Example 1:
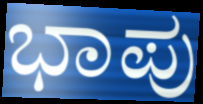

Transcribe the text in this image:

ಭಾಪು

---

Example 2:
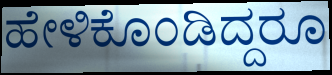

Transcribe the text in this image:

ಹೇಳಿಕೊಂಡಿದ್ದರೂ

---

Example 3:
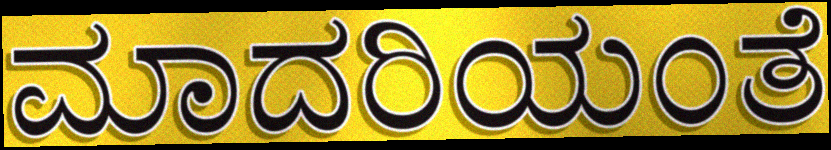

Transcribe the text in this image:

ಮಾದರಿಯಂತೆ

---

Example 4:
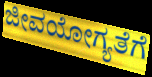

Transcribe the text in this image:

ಜೀವಯೋಗ್ಯತೆಗೆ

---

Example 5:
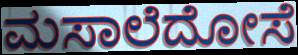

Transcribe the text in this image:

ಮಸಾಲೆದೋಸೆ